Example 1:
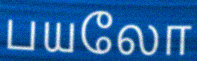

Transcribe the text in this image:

பயலோ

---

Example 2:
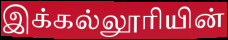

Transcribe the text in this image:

இக்கல்லூரியின்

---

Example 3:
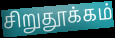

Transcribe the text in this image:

சிறுதூக்கம்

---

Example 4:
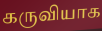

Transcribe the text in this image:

கருவியாக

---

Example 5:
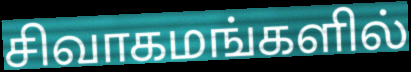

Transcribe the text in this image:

சிவாகமங்களில்